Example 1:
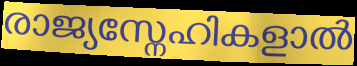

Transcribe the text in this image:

രാജ്യസ്നേഹികളാൽ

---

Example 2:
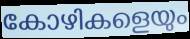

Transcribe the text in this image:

കോഴികളെയും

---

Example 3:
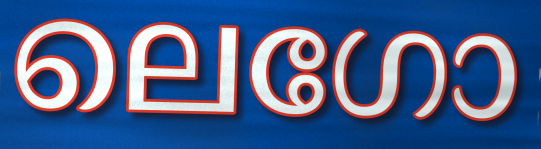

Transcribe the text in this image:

ലെഗോ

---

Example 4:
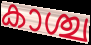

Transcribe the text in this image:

കാശ്ച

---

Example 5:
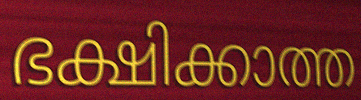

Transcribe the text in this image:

ഭക്ഷിക്കാത്ത